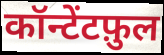
कॉन्टेंटफ़ुल